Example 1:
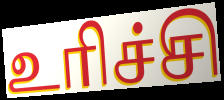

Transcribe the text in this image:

உரிச்சி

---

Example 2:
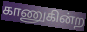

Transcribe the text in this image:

காணுகின்ற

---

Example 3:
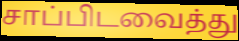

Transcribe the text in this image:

சாப்பிடவைத்து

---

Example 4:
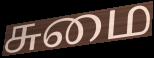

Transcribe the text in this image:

சுமை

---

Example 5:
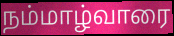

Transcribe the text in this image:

நம்மாழ்வாரை